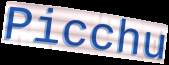
Picchu